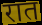
रात